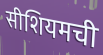
सीशियमची